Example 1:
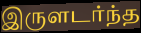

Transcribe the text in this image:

இருளடர்ந்த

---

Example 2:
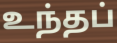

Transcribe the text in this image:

உந்தப்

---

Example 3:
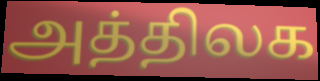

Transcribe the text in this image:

அத்திலக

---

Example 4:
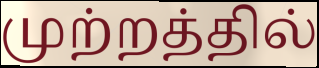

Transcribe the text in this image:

முற்றத்தில்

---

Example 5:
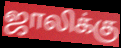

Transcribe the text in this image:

ஜாலிக்கு